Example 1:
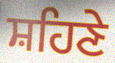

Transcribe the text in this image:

ਸ਼ਹਿਣੇ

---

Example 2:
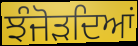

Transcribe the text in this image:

ਝੰਜੋੜਦਿਆਂ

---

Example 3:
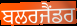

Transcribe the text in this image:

ਬਲਰਜੈਂਡਰ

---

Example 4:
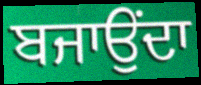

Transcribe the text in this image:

ਬਜਾਉਂਦਾ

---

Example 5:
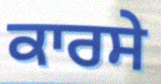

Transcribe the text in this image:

ਕਾਰਸੇ